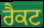
ਰੈਕਟ